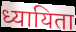
ध्यायिता